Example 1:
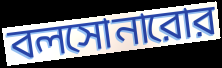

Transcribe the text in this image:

বলসোনারোর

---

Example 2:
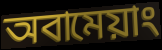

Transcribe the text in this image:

অবামেয়াং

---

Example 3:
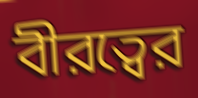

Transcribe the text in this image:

বীরত্বের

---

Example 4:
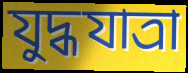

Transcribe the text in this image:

যুদ্ধযাত্রা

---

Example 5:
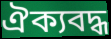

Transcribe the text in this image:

ঐক্যবদ্ধ